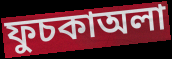
ফুচকাঅলা